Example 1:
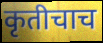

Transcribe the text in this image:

कृतीचाच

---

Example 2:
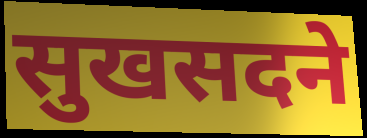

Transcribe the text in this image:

सुखसदने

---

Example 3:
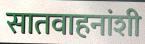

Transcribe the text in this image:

सातवाहनांशी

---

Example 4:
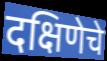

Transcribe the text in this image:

दक्षिणेचे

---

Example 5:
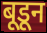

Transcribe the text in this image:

बूडून